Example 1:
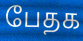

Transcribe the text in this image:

பேதக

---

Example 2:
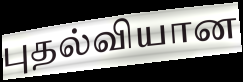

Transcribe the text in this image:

புதல்வியான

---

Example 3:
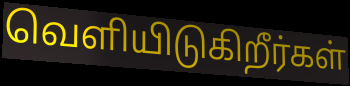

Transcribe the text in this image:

வெளியிடுகிறீர்கள்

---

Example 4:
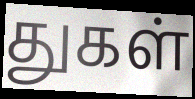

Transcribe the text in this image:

துகள்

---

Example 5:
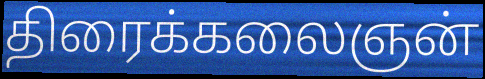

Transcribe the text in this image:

திரைக்கலைஞன்